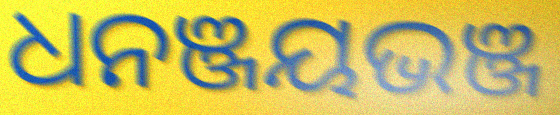
ଧନଞ୍ଜୟଭଞ୍ଜ